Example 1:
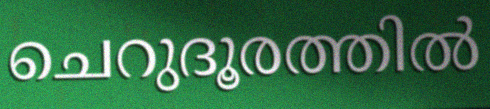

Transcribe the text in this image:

ചെറുദൂരത്തിൽ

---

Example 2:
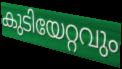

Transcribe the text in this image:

കുടിയേറ്റവും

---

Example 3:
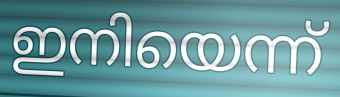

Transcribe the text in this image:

ഇനിയെന്ന്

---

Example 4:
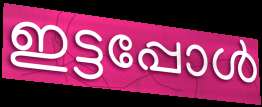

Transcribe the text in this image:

ഇട്ടപ്പോൾ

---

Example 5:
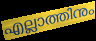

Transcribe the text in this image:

എല്ലാത്തിനും